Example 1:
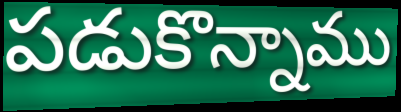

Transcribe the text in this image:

పడుకొన్నాము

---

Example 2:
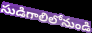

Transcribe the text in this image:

సుడిగాలిలోనుండి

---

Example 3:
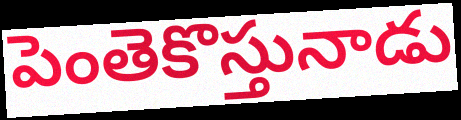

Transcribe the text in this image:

పెంతెకొస్తునాడు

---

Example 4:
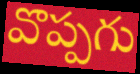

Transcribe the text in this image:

వొప్పగు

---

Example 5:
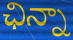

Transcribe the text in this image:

ఛిన్నా